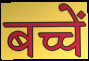
बच्चें